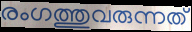
രംഗത്തുവരുന്നത്